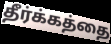
தீர்க்கத்தை